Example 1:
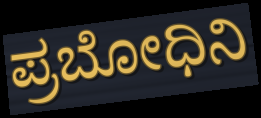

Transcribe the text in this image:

ಪ್ರಬೋಧಿನಿ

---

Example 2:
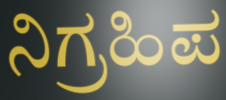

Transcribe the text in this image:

ನಿಗ್ರಹಿಪ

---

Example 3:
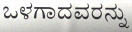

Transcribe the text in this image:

ಒಳಗಾದವರನ್ನು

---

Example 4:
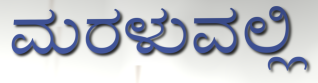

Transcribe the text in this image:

ಮರಳುವಲ್ಲಿ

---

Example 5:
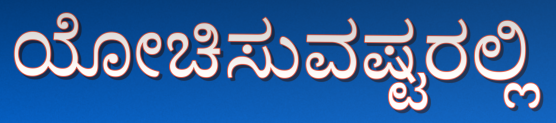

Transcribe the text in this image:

ಯೋಚಿಸುವಷ್ಟರಲ್ಲಿ